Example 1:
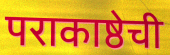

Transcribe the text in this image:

पराकाष्ठेची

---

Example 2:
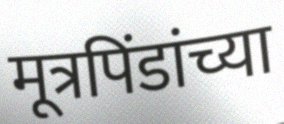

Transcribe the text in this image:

मूत्रपिंडांच्या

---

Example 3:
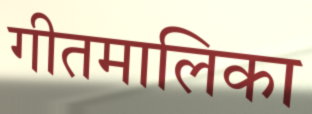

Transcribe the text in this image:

गीतमालिका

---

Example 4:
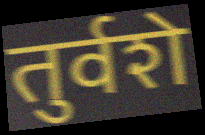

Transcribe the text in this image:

तुर्वशे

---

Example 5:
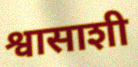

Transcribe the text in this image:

श्वासाशी